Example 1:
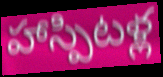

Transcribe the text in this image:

హాస్పిటళ్ల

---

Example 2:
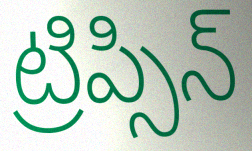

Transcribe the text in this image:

ట్రిప్సిన్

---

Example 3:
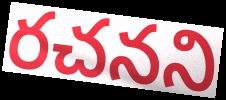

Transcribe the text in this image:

రచనని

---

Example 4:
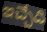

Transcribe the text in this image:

ఇచ్చేది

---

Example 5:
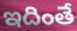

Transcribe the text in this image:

ఇదింతే